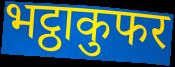
भट्ठाकुफर